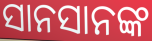
ସାନସାନଙ୍କ